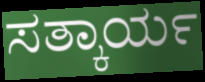
ಸತ್ಕಾರ್ಯ